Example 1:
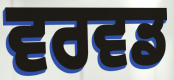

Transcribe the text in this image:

ਵਰਵਡ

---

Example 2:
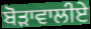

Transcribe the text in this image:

ਬੋੜਾਵਾਲੀਏ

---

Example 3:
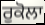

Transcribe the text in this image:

ਰੁਕੋਲਾ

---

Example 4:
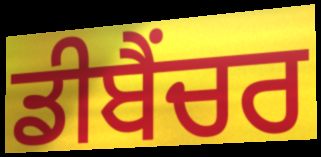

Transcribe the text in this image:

ਡੀਬੈਂਚਰ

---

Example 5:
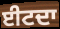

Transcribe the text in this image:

ਈਟਦਾ